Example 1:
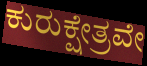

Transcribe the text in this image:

ಕುರುಕ್ಷೇತ್ರವೇ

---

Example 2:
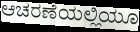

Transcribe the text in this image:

ಆಚರಣೆಯಲ್ಲಿಯೂ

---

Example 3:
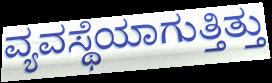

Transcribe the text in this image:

ವ್ಯವಸ್ಥೆಯಾಗುತ್ತಿತ್ತು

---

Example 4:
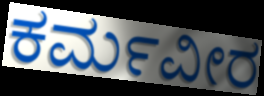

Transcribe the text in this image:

ಕರ್ಮವೀರ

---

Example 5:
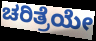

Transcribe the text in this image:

ಚರಿತ್ರೆಯೇ